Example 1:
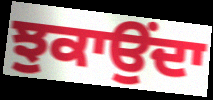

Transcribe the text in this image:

ਝੁਕਾਉਂਦਾ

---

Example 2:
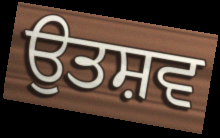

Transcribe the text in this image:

ਉਤਸ਼ਵ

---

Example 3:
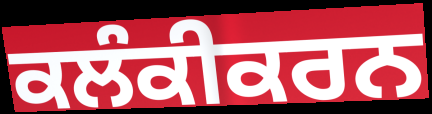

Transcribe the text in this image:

ਕਲੰਕੀਕਰਨ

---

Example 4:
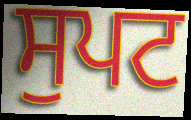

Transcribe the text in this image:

ਸੁਪਟ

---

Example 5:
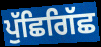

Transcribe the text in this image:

ਪੁੱਛਿਗਿੱਛ